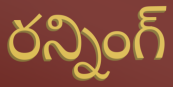
రన్నింగ్